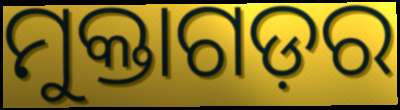
ମୁକ୍ତାଗଡ଼ର